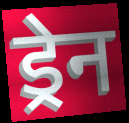
ड्रेन